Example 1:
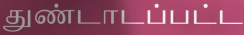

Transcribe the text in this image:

துண்டாடப்பட்ட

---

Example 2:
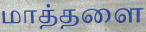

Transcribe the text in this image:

மாத்தளை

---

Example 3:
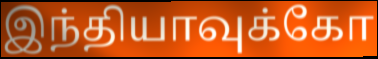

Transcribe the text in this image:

இந்தியாவுக்கோ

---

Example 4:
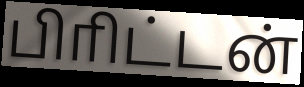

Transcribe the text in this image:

பிரிட்டன்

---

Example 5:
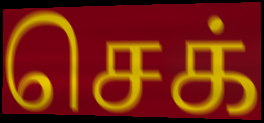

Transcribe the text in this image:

செக்